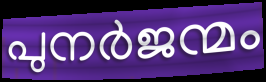
പുനർജന്മം